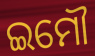
ଇମୌ